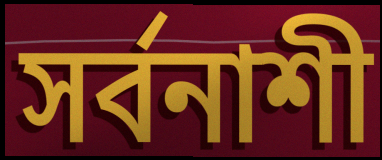
সৰ্বনাশী